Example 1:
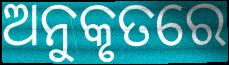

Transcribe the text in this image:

ଅନୁକୃତରେ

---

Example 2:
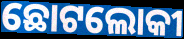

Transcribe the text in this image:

ଛୋଟଲୋକୀ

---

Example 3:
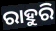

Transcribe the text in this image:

ରାହୁରି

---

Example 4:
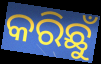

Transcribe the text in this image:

କରିଛୁଁ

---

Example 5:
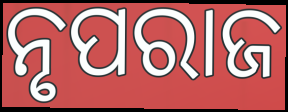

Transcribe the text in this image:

ନୃପରାଜ